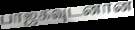
பாஜகவுடனான